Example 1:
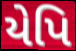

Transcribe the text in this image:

યેપિ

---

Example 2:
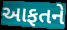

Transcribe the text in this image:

આફતને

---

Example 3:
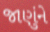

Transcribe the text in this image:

જાણુંને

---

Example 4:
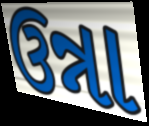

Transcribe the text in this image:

ઉન્ના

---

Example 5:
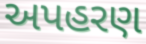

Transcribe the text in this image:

અપહરણ